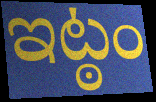
ఇట్ఠం